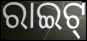
ରାଇଟ୍